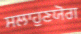
ਸਲਾਹੁਣਯੋਗ